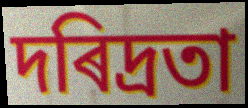
দৰিদ্ৰতা